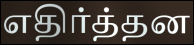
எதிர்த்தன